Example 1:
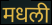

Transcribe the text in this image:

मधली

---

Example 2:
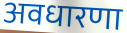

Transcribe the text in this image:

अवधारणा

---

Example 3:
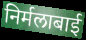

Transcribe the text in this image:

निर्मलाबाई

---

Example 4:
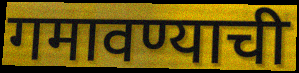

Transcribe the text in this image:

गमावण्याची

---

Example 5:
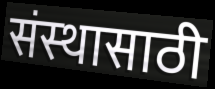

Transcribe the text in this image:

संस्थासाठी